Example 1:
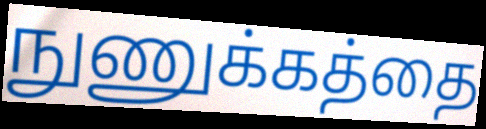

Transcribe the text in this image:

நுணுக்கத்தை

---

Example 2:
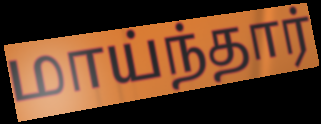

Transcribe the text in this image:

மாய்ந்தார்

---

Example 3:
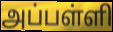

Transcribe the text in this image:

அப்பள்ளி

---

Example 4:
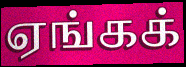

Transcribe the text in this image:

ஏங்கக்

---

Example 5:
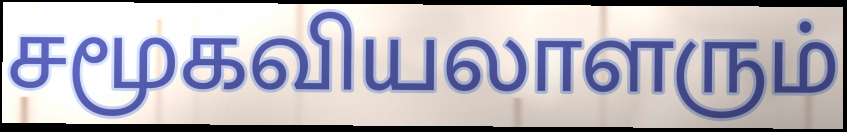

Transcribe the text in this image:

சமூகவியலாளரும்